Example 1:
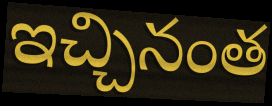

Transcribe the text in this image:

ఇచ్చినంత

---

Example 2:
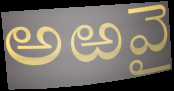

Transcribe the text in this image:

అఱవై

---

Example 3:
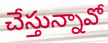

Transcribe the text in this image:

చేస్తున్నావో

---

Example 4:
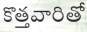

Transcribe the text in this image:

కొత్తవారితో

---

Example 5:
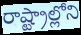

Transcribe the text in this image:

రాష్ట్రాల్లోని